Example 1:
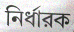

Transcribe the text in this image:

নির্ধারক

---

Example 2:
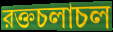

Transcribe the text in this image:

রক্তচলাচল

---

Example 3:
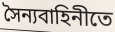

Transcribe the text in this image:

সৈন্যবাহিনীতে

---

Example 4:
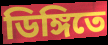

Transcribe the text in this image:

ডিঙ্গিতে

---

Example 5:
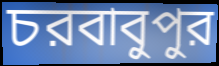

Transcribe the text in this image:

চরবাবুপুর